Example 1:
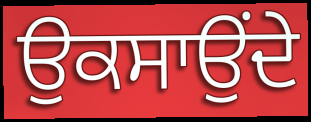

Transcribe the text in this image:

ਉਕਸਾਉਂਦੇ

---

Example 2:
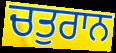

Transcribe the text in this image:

ਚਤੁਰਾਨ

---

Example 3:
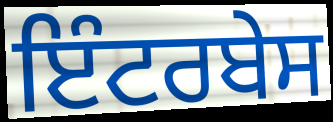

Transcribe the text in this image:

ਇੰਟਰਬੇਸ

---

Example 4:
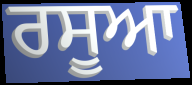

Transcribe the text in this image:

ਰਸੂਆ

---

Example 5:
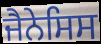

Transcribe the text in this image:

ਜੈਨੇਸਿਸ